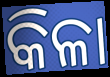
କିଳା